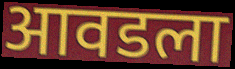
आवडला